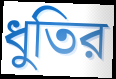
ধুতির